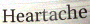
Heartache